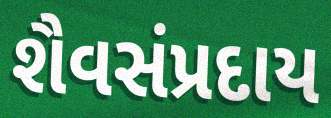
શૈવસંપ્રદાય